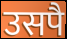
उसपै